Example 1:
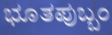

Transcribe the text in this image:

ಭೂತಪುಬ್ಬಂ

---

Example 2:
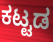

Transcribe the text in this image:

ಕಟ್ಟಡ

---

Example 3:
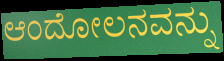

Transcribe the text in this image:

ಆಂದೋಲನವನ್ನು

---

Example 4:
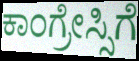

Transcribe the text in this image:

ಕಾಂಗ್ರೇಸ್ಸಿಗೆ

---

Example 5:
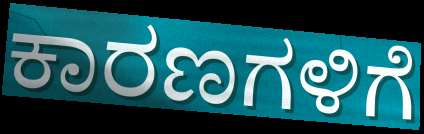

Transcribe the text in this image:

ಕಾರಣಗಳಿಗೆ